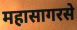
महासागरसे